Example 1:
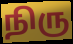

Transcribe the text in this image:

நிரு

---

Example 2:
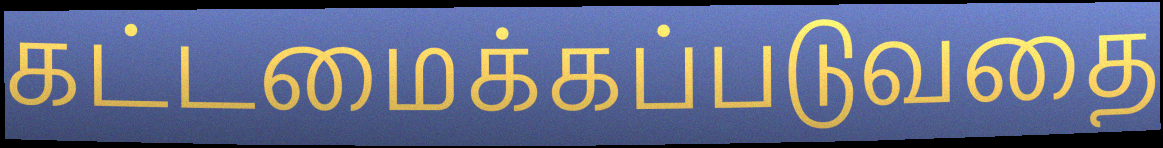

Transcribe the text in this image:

கட்டமைக்கப்படுவதை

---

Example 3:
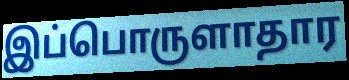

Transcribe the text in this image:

இப்பொருளாதார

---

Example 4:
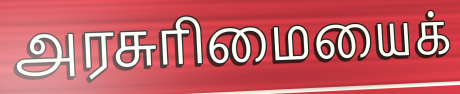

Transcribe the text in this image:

அரசுரிமையைக்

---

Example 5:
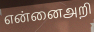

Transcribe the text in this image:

என்னைஅறி